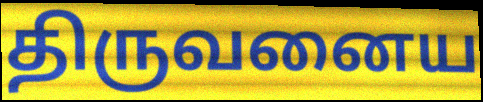
திருவனைய